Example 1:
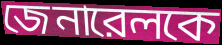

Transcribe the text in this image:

জেনারেলকে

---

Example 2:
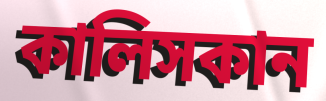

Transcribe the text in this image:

কালিসকান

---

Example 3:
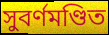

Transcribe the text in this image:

সুবর্ণমণ্ডিত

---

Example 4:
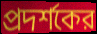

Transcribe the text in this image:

প্রদর্শকের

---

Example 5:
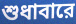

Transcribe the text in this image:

শুধাবারে